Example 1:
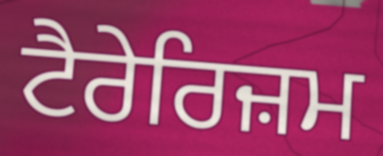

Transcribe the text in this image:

ਟੈਰੇਰਿਜ਼ਮ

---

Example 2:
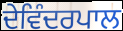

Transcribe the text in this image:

ਦੇਵਿੰਦਰਪਾਲ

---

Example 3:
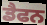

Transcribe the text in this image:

ਡੈਫਨ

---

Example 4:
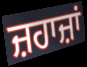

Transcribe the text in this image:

ਜ਼ਹਾਜ਼ਾਂ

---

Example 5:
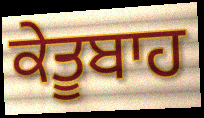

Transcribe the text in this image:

ਕੇਤੂਬਾਹ